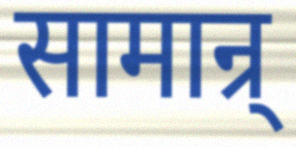
सामान्र्